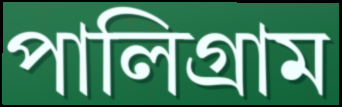
পালিগ্রাম